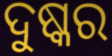
ଦୁଷ୍କର